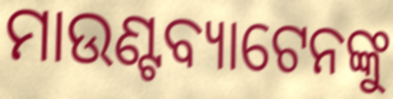
ମାଉଣ୍ଟବ୍ୟାଟେନଙ୍କୁ